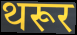
थरूर